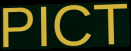
PICT